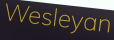
Wesleyan